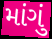
માંગું